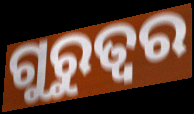
ଗୁରୁତ୍ବର